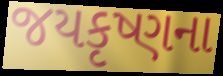
જયકૃષ્ણના